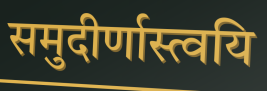
समुदीर्णास्त्वयि